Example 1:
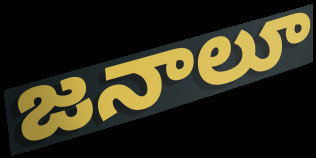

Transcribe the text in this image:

జనాలూ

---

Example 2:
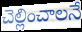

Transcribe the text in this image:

చెల్లించాలనే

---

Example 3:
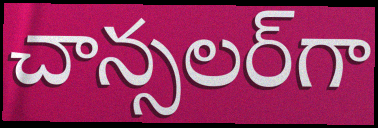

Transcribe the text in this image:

చాన్సలర్‌గా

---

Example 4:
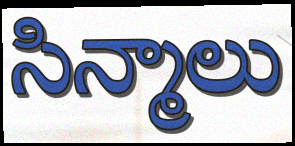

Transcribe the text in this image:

సిన్మాలు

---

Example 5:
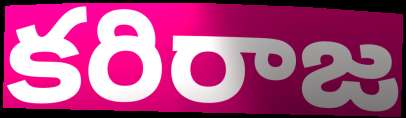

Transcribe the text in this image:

కరిరాజ